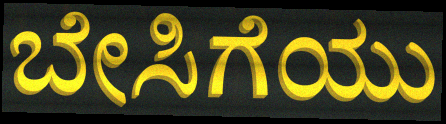
ಬೇಸಿಗೆಯು